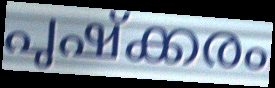
പുഷ്ക്കരം